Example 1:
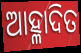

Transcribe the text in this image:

ଆହ୍ଳାଦିତ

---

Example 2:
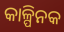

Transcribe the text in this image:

କାଳ୍ପିନକ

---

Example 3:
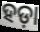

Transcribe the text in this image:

ହଡ଼ା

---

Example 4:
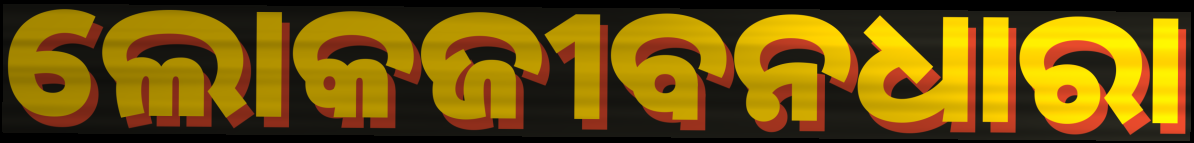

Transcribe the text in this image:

ଲୋକଜୀବନଧାରା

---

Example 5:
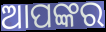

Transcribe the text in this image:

ଆପଙ୍କର